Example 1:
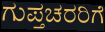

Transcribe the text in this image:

ಗುಪ್ತಚರರಿಗೆ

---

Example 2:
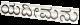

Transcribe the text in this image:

ಯದೀಮನು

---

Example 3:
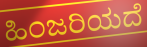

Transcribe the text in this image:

ಹಿಂಜರಿಯದೆ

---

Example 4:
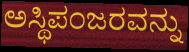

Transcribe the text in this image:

ಅಸ್ಥಿಪಂಜರವನ್ನು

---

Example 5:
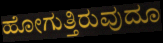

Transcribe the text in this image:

ಹೋಗುತ್ತಿರುವುದೂ